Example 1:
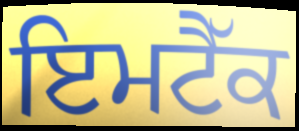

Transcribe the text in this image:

ਇਮਟੈੱਕ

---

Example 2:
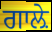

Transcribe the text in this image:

ਗਾਲ਼ੇ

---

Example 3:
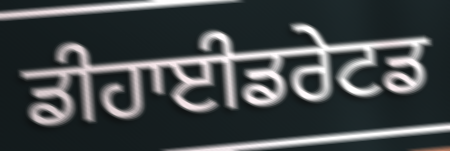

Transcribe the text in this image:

ਡੀਹਾਈਡਰੇਟਡ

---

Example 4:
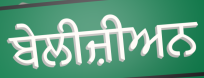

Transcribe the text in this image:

ਬੇਲੀਜ਼ੀਅਨ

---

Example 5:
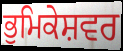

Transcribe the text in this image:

ਭੁਮਿਕੇਸ਼ਵਰ